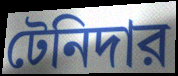
টেনিদার